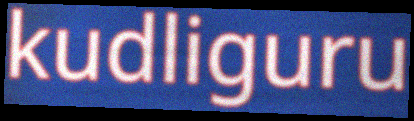
kudliguru